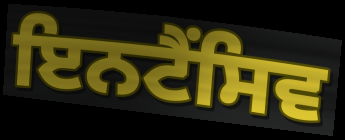
ਇਨਟੈਂਸਿਵ